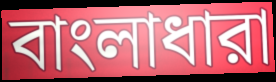
বাংলাধারা